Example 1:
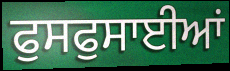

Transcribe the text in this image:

ਫੁਸਫੁਸਾਈਆਂ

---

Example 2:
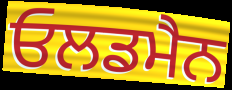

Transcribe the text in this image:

ਓਲਡਮੈਨ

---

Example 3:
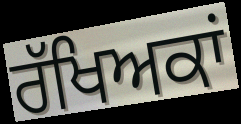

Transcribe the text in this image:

ਰੱਖਿਅਕਾਂ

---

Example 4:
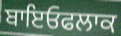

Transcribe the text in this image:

ਬਾਇਓਫਲਾਕ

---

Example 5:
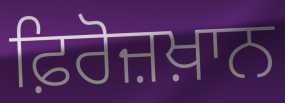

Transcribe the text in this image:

ਫ਼ਿਰੋਜ਼ਖ਼ਾਨ